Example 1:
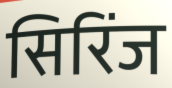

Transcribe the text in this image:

सिरिंज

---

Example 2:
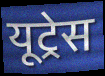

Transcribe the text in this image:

यूट्रेस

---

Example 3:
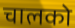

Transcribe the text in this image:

चालको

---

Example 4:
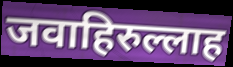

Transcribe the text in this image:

जवाहिरुल्लाह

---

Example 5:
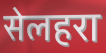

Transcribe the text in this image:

सेलहरा